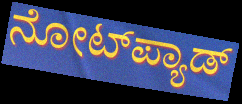
ನೋಟ್‌ಪ್ಯಾಡ್